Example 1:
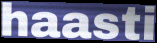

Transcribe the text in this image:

haasti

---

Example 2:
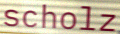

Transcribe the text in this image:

scholz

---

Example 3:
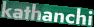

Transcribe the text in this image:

kathanchi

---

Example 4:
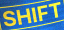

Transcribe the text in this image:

SHIFT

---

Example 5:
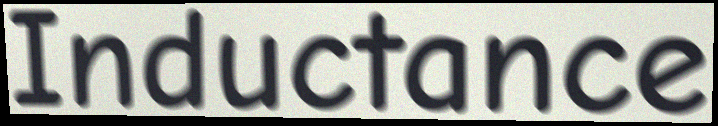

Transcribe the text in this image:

Inductance